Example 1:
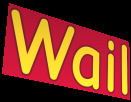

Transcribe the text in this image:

Wail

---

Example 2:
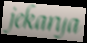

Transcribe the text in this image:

jekarya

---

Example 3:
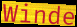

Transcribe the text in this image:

Winde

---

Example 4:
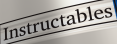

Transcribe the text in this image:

Instructables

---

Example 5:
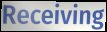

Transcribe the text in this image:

Receiving